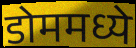
डोममध्ये